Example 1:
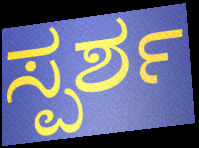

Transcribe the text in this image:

ಸ್ಪರ್ಶ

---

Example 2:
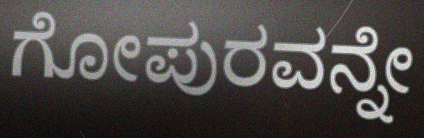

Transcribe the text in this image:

ಗೋಪುರವನ್ನೇ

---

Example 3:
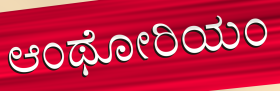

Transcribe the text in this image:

ಆಂಥೋರಿಯಂ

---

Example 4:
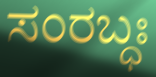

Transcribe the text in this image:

ಸಂರಬ್ಧಃ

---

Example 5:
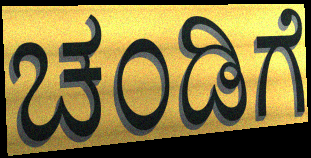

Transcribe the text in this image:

ಚಂಡಿಗೆ